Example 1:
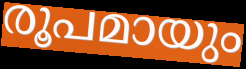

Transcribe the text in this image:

രൂപമായും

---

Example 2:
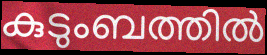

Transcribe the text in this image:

കുടുംബത്തിൽ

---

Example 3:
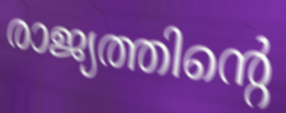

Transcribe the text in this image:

രാജ്യത്തിന്റെ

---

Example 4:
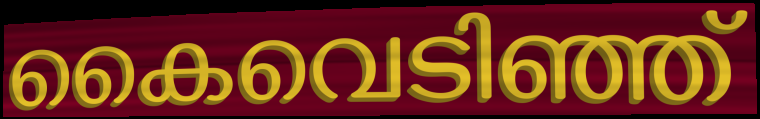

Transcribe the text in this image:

കൈവെടിഞ്ഞ്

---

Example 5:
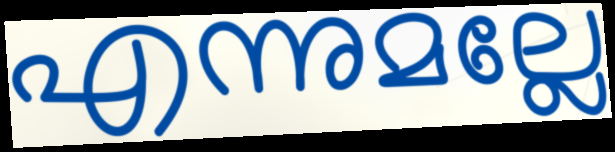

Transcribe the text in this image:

എന്നുമല്ലേ